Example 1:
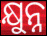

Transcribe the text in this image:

କ୍ଷୁନ୍ନ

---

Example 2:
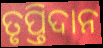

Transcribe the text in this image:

ତୃପ୍ତିଦାନ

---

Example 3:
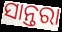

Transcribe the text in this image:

ସାନ୍ତରା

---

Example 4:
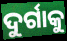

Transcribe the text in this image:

ଦୁର୍ଗାକୁ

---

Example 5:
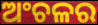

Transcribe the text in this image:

ଅଂଚଳର